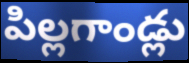
పిల్లగాండ్లు